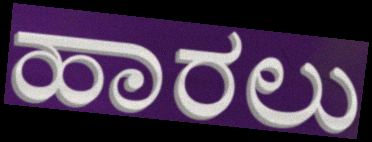
ಹಾರಲು